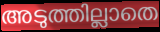
അടുത്തില്ലാതെ